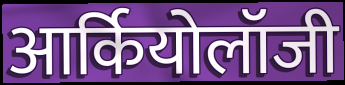
आर्कियोलॉजी